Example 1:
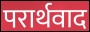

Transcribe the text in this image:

परार्थवाद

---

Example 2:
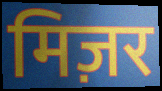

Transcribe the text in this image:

मिज़र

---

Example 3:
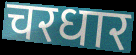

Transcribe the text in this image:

चरधार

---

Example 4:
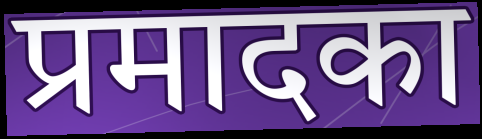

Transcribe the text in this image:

प्रमादका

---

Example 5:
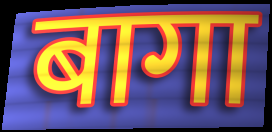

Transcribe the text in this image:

बागा